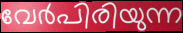
വേർപിരിയുന്ന